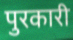
पुरकारी